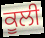
ਕੂਲੀ